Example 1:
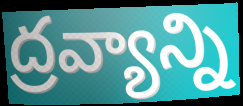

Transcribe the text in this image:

ద్రవ్యాన్ని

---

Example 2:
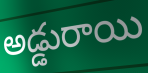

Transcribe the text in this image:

అడ్డురాయి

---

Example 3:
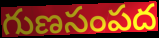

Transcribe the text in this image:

గుణసంపద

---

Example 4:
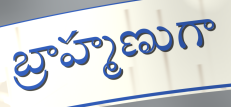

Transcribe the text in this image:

బ్రాహ్మణుగా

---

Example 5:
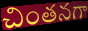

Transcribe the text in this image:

చింతనగా